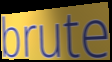
brute